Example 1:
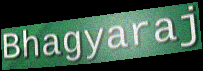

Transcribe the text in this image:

Bhagyaraj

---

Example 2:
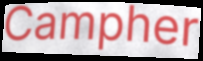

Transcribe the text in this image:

Campher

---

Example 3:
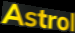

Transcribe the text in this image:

Astrol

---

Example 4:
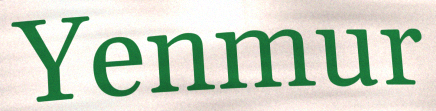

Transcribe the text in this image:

Yenmur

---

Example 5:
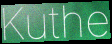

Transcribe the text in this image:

Kuthe